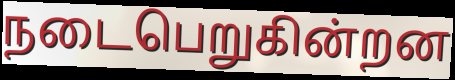
நடைபெறுகின்றன